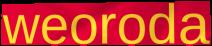
weoroda